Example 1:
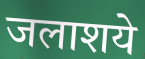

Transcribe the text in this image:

जलाशये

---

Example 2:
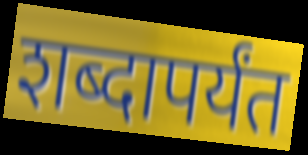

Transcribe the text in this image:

शब्दापर्यंत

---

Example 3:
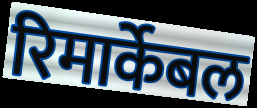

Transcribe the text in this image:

रिमार्केबल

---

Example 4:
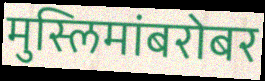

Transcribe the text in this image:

मुस्लिमांबरोबर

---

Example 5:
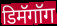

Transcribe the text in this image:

डिमॅगॉग